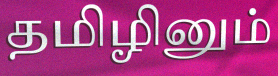
தமிழினும்